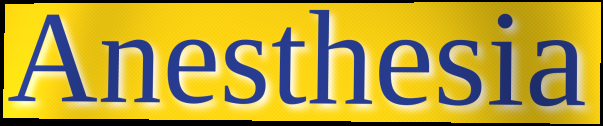
Anesthesia